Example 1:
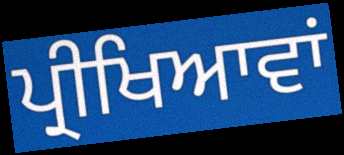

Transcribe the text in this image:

ਪ੍ਰੀਖਿਆਵਾਂ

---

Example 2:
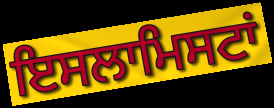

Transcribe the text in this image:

ਇਸਲਾਮਿਸਟਾਂ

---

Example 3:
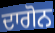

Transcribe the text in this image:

ਦਾਗੋਨ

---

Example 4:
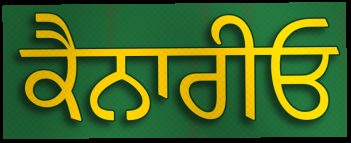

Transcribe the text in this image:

ਕੈਨਾਰੀਓ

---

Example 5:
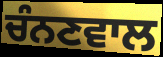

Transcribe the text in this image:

ਚੰਨਣਵਾਲ